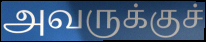
அவருக்குச்